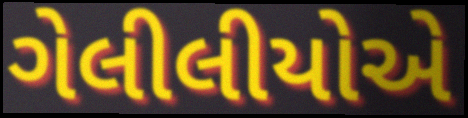
ગેલીલીયોએ